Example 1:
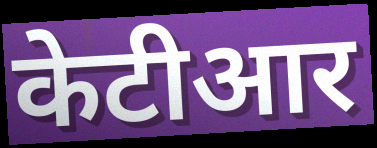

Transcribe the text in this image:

केटीआर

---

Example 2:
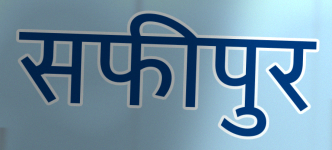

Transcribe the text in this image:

सफीपुर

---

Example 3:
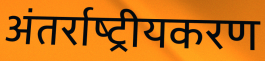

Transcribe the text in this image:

अंतर्राष्ट्रीयकरण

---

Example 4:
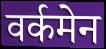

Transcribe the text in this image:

वर्कमेन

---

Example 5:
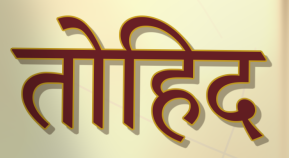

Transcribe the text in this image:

तोहिद